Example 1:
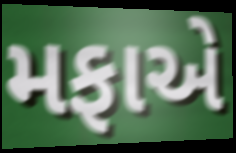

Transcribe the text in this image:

મફાએ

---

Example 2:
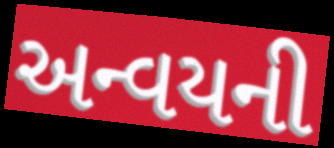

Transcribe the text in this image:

અન્વયની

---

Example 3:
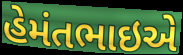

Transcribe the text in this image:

હેમંતભાઇએ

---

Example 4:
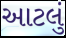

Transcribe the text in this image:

આટલું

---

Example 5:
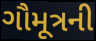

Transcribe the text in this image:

ગૌમૂત્રની